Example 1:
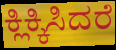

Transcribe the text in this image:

ಕ್ಲಿಕ್ಕಿಸಿದರೆ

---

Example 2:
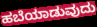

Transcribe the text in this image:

ಹಬೆಯಾಡುವುದು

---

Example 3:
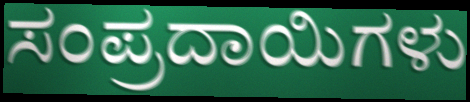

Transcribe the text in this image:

ಸಂಪ್ರದಾಯಿಗಳು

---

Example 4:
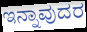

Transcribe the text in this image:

ಇನ್ನಾವುದರ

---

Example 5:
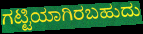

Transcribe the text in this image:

ಗಟ್ಟಿಯಾಗಿರಬಹುದು